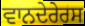
ਵਾਨਦੇਰੇਰਸ